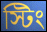
স্টিং